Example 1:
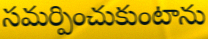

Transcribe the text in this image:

సమర్పించుకుంటాను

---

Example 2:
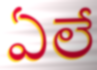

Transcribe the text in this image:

ఏలే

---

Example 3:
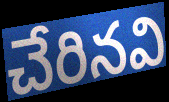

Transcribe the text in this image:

చేరినవి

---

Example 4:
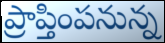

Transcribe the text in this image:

ప్రాప్తింపనున్న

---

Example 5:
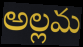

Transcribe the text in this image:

అల్లమ